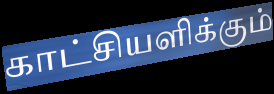
காட்சியளிக்கும்